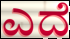
ಎದೆ